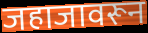
जहाजावरून